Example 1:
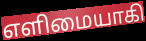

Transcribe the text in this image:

எளிமையாகி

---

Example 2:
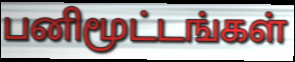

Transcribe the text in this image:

பனிமூட்டங்கள்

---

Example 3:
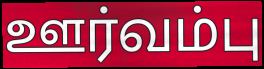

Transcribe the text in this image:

ஊர்வம்பு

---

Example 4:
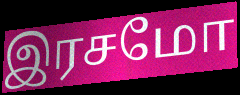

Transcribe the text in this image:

இரசமோ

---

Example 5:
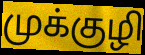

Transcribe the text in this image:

முக்குழி